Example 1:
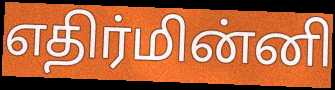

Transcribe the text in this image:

எதிர்மின்னி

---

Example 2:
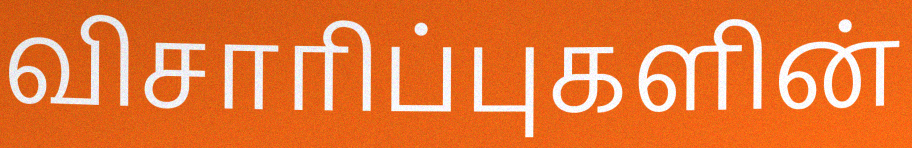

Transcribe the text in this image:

விசாரிப்புகளின்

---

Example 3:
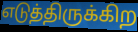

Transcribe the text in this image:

எடுத்திருக்கிற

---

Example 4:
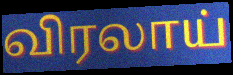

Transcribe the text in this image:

விரலாய்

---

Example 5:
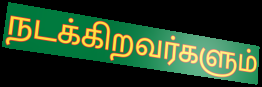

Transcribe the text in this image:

நடக்கிறவர்களும்